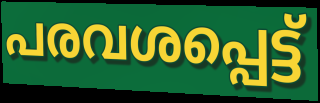
പരവശപ്പെട്ട്